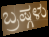
ಬ್ರಷ್ಗಳು